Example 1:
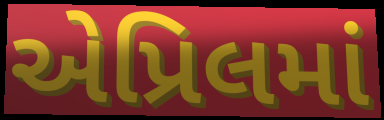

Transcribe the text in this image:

એપ્રિલમાં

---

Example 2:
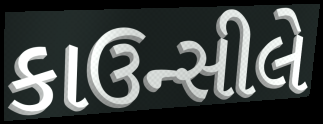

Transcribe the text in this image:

કાઉન્સીલે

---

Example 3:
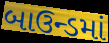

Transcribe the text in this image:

બાઉન્ડમાં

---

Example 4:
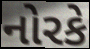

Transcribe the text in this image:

નોરકે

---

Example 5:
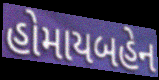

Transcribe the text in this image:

હોમાયબહેન